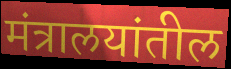
मंत्रालयांतील